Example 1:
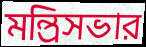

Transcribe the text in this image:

মন্ত্রিসভার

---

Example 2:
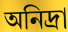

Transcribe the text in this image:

অনিদ্রা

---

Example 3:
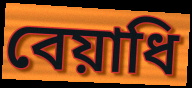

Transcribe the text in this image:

বেয়াধি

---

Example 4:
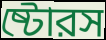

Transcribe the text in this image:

ষ্টোরস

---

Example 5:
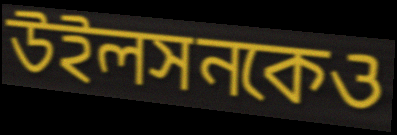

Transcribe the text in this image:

উইলসনকেও